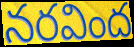
నరవింద